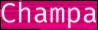
Champa